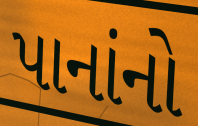
પાનાંનો